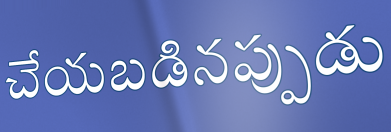
చేయబడినప్పుడు